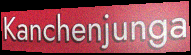
Kanchenjunga